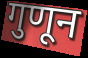
गुणून